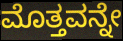
ಮೊತ್ತವನ್ನೇ